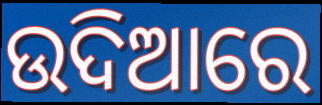
ଉଦିଆରେ